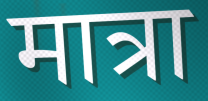
मात्रा